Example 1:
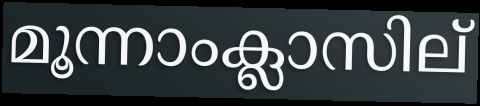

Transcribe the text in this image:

മൂന്നാംക്ലാസില്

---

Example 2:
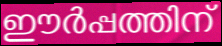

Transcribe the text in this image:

ഈർപ്പത്തിന്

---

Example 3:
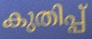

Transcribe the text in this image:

കുതിപ്പ്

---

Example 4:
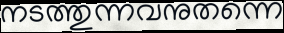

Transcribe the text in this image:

നടത്തുന്നവനുതന്നെ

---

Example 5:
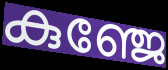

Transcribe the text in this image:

കുഞ്ജേ